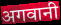
अगवानी